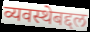
व्यवस्थेबद्दल